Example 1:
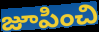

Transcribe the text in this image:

జూపించి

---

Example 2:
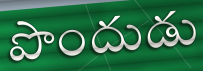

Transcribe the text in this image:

పొందుడు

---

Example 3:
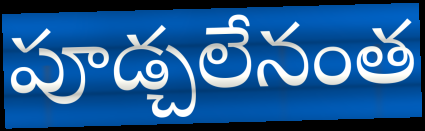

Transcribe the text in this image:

పూడ్చలేనంత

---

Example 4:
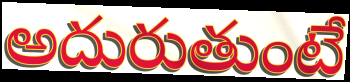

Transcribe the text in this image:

అదురుతుంటే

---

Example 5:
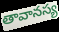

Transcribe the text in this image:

తావానస్య